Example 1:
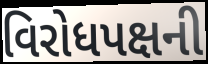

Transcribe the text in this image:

વિરોધપક્ષની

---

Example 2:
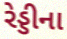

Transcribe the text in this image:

રેડ્ડીના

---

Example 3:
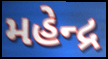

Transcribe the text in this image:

મહેન્દ્ર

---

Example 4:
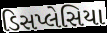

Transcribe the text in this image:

ડિસપ્લેસિયા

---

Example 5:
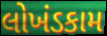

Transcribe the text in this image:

લોખંડકામ